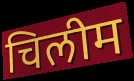
चिलीम